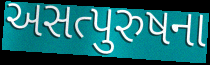
અસત્પુરુષના